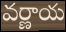
వర్ణాయ